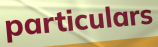
particulars